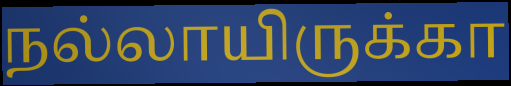
நல்லாயிருக்கா